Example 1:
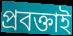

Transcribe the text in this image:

প্রবক্তাই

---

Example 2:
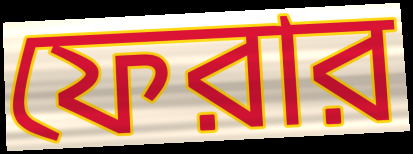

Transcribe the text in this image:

ফেরার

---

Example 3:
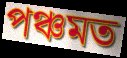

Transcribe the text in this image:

পঞ্চমত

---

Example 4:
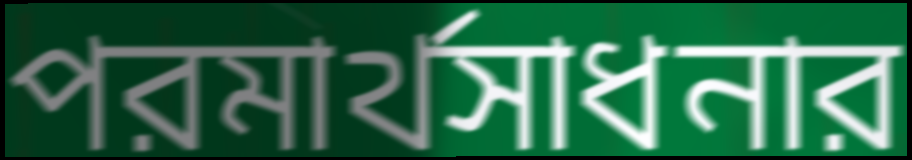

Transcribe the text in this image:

পরমার্থসাধনার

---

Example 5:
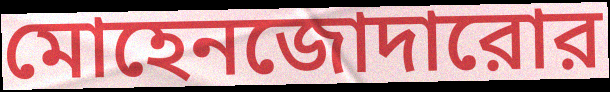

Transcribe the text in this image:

মোহেনজোদারোর